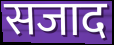
सजाद